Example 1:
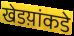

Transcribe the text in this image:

खेडय़ांकडे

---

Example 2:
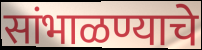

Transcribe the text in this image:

सांभाळण्याचे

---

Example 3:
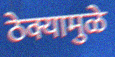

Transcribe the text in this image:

ठेक्यामुळे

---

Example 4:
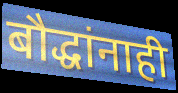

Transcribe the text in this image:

बौद्धांनाही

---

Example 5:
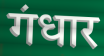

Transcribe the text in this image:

गंधार